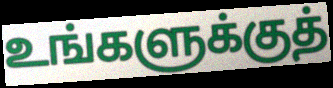
உங்களுக்குத்